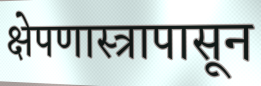
क्षेपणास्त्रापासून